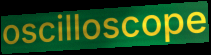
oscilloscope